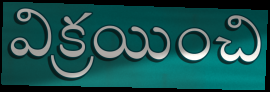
విక్రయించి